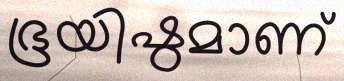
ഭൂയിഷ്ഠമാണ്